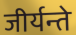
जीर्यन्ते